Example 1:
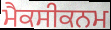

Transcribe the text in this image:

ਮੈਕਸੀਕਨਮ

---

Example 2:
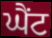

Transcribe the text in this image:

ਘੈਂਟ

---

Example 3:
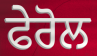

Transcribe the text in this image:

ਫੇਰੋਲ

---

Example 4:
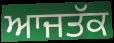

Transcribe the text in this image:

ਆਜਤੱਕ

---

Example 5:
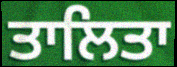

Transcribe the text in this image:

ਤਾਲਿਤਾ